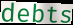
debts